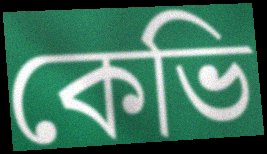
কেভি